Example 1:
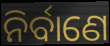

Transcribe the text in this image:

ନିର୍ବାଣେ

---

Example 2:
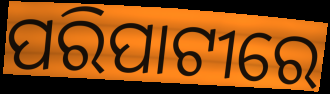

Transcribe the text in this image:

ପରିପାଟୀରେ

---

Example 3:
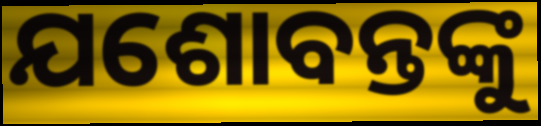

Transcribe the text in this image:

ଯଶୋବନ୍ତଙ୍କୁ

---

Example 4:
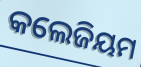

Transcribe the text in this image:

କଲେଜିୟମ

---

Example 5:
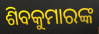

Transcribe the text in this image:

ଶିବକୁମାରଙ୍କ